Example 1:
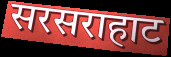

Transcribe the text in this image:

सरसराहाट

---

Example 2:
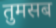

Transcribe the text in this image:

तुमसब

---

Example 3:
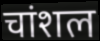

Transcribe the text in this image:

चांशल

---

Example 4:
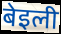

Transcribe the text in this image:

बेइली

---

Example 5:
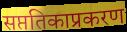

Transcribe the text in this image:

सप्ततिकाप्रकरण